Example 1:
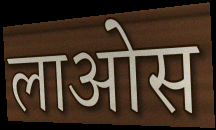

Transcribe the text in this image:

लाओस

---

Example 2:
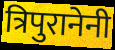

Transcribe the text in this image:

त्रिपुरानेनी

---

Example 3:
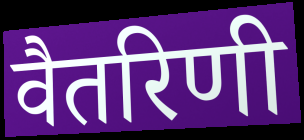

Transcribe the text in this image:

वैतरिणी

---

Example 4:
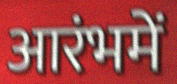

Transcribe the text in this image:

आरंभमें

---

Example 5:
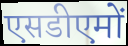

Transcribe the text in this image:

एसडीएमों